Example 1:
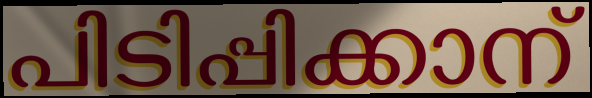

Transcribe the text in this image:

പിടിപ്പിക്കാന്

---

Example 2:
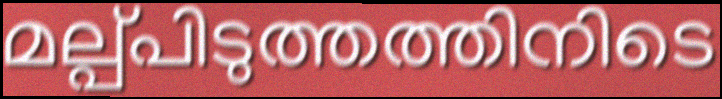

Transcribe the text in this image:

മല്പ്പിടുത്തത്തിനിടെ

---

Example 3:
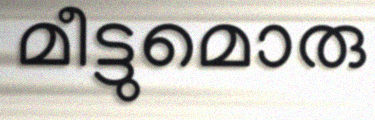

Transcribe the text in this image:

മീട്ടുമൊരു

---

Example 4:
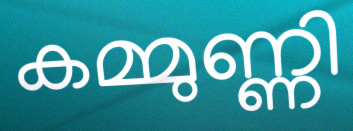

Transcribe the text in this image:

കമ്മുണ്ണി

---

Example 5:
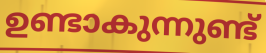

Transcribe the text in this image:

ഉണ്ടാകുന്നുണ്ട്